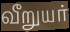
வீறுயர்